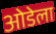
ओडेला